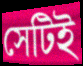
সেটিই